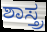
ಶಾಸ್ತ್ರ